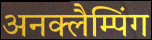
अनक्लैम्पिंग